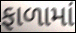
ફાળામાં